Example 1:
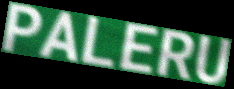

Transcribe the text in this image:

PALERU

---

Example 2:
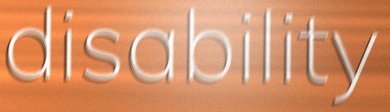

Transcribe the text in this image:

disability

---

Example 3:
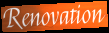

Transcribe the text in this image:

Renovation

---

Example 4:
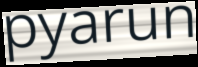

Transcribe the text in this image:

pyarun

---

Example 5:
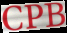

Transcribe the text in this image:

CPB